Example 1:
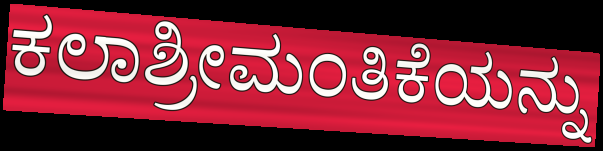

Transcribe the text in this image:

ಕಲಾಶ್ರೀಮಂತಿಕೆಯನ್ನು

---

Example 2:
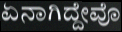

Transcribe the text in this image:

ಏನಾಗಿದ್ದೇವೊ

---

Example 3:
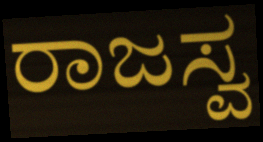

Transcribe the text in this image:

ರಾಜಸ್ವ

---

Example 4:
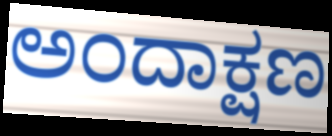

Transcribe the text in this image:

ಅಂದಾಕ್ಷಣ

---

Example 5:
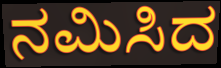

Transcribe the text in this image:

ನಮಿಸಿದ